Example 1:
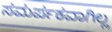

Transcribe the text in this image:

ಸಮರ್ಪಕವಾಗಿಲ್ಲ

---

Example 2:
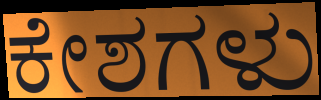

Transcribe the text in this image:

ಕೇಶಗಳು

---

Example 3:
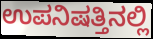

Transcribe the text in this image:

ಉಪನಿಷತ್ತಿನಲ್ಲಿ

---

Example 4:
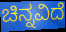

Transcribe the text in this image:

ಚಿನ್ನವಿದೆ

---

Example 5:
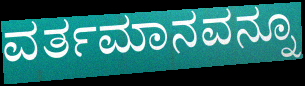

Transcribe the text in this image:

ವರ್ತಮಾನವನ್ನೂ